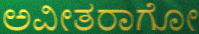
ಅವೀತರಾಗೋ